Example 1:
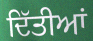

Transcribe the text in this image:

ਦਿੱਤੀਆਂ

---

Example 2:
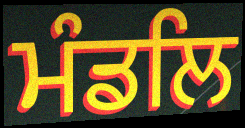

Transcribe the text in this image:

ਮੰਡਲਿ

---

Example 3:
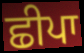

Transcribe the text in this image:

ਛੀਪਾ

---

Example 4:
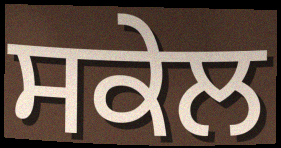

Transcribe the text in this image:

ਸਕੇਲ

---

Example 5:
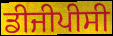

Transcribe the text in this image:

ਡੀਜੀਪੀਸੀ